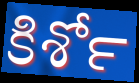
కిశోర్‍